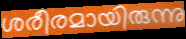
ശരീരമായിരുന്നു